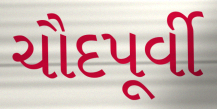
ચૌદપૂર્વી